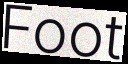
Foot